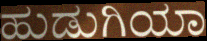
ಹುಡುಗಿಯಾ